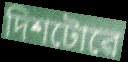
দিশটোৱে